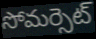
సోమర్సెట్